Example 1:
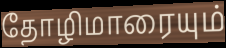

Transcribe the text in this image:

தோழிமாரையும்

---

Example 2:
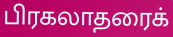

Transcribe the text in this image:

பிரகலாதரைக்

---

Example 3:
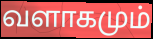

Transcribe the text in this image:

வளாகமும்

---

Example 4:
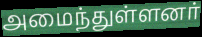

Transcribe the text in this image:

அமைந்துள்ளனர்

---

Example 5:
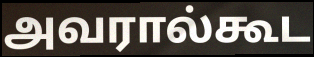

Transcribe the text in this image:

அவரால்கூட